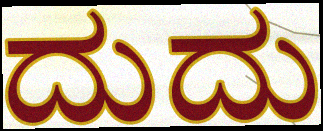
ದುದು